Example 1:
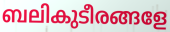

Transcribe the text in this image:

ബലികുടീരങ്ങളേ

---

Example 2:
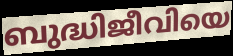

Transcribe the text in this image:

ബുദ്ധിജീവിയെ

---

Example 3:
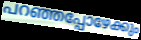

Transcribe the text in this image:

പറഞ്ഞപ്പോഴേക്കും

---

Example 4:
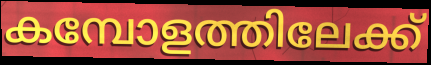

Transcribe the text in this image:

കമ്പോളത്തിലേക്ക്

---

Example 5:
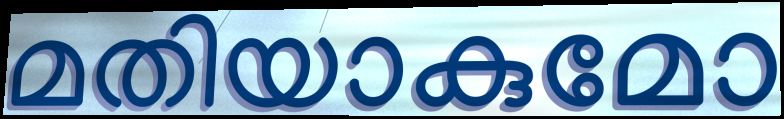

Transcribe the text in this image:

മതിയാകുമോ